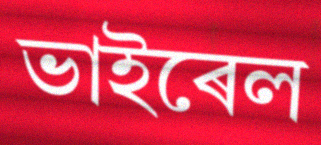
ভাইৰেল